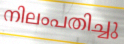
നിലംപതിച്ചു